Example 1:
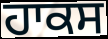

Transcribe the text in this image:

ਹਾਕਸ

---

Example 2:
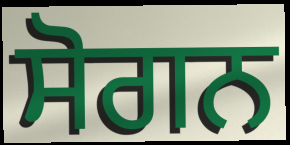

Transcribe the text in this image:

ਸੋਗਨ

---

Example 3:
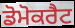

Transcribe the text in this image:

ਡੋਮੋਕਰੈਟ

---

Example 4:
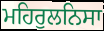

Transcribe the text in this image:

ਮਹਿਰੁਲਨਿਸਾ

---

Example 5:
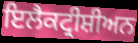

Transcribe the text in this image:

ਇਲੈਕਟ੍ਰੀਸ਼ੀਅਨ